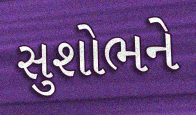
સુશોભને